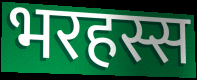
भरहस्स